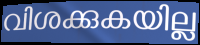
വിശക്കുകയില്ല